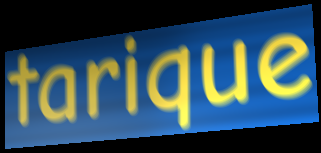
tarique